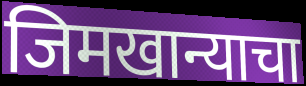
जिमखान्याचा